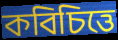
কবিচিত্তে